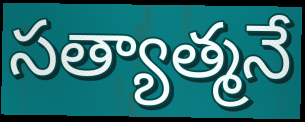
సత్యాత్మనే